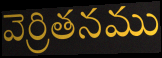
వెర్రితనము